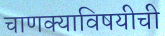
चाणक्याविषयीची